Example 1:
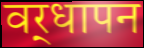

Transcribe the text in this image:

वर्धापन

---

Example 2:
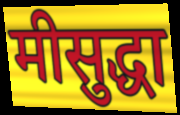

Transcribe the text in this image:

मीसुद्धा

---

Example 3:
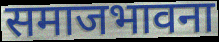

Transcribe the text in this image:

समाजभावना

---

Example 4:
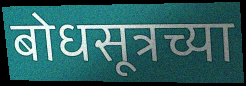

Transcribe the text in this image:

बोधसूत्रच्या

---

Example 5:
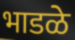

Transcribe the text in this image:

भाडळे